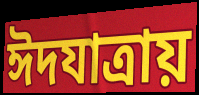
ঈদযাত্রায়